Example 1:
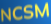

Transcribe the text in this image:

NCSM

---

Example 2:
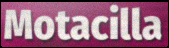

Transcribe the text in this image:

Motacilla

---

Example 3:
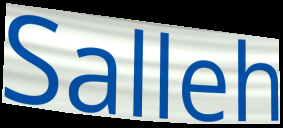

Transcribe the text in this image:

Salleh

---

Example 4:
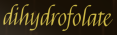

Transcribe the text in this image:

dihydrofolate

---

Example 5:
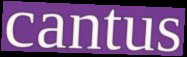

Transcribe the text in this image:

cantus